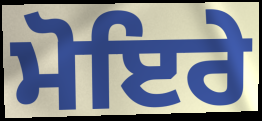
ਮੋਇਰੇ